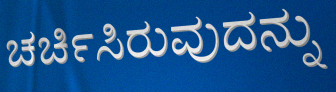
ಚರ್ಚಿಸಿರುವುದನ್ನು